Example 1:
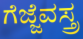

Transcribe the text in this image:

ಗೆಜ್ಜೆವಸ್ತ್ರ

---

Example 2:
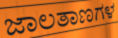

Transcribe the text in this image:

ಜಾಲತಾಣಗಳ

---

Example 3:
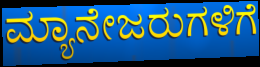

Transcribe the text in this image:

ಮ್ಯಾನೇಜರುಗಳಿಗೆ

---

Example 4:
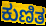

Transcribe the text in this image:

ಕುಣಿತ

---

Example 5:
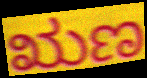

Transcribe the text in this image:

ಋಣ